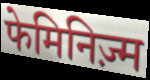
फेमिनिज़्म